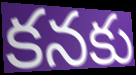
కనకు